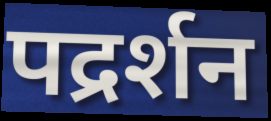
पद्रर्शन